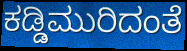
ಕಡ್ಡಿಮುರಿದಂತೆ